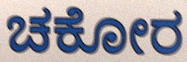
ಚಕೋರ